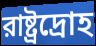
রাষ্ট্রদ্রোহ